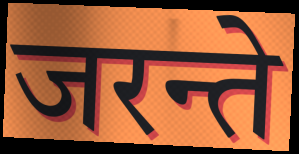
जरन्ते